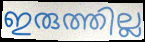
ഇരുത്തില്ല